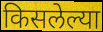
किसलेल्या